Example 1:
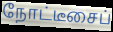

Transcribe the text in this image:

நோட்டீசைப்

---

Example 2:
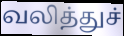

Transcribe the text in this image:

வலித்துச்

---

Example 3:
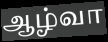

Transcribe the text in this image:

ஆழ்வா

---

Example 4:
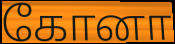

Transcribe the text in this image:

கோனா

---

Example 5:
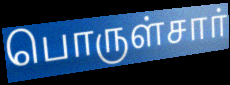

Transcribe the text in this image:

பொருள்சார்